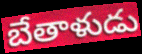
బేతాళుడు